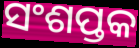
ସଂଶପ୍ତକ